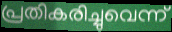
പ്രതികരിച്ചുവെന്ന്